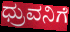
ಧ್ರುವನಿಗೆ